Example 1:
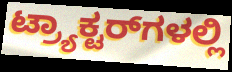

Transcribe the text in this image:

ಟ್ರ್ಯಾಕ್ಟರ್‌ಗಳಲ್ಲಿ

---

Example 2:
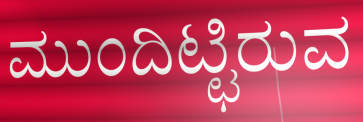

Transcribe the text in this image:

ಮುಂದಿಟ್ಟಿರುವ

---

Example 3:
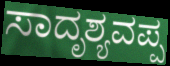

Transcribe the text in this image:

ಸಾದೃಶ್ಯವಪ್ಪ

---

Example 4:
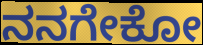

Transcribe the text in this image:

ನನಗೇಕೋ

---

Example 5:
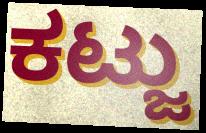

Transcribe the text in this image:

ಕಟ್ಜು